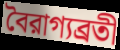
বৈরাগ্যব্রতী